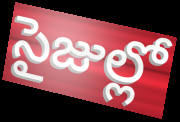
సైజుల్లో